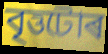
বৃত্তটোৰ